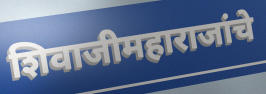
शिवाजीमहाराजांचे